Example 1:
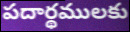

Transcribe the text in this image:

పదార్థములకు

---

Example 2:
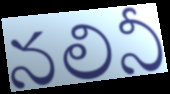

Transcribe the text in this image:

నలినీ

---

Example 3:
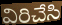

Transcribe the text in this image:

విరిచేసి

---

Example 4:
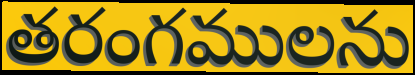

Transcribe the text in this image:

తరంగములను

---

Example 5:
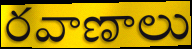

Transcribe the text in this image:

రవాణాలు